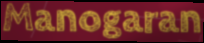
Manogaran